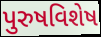
પુરુષવિશેષ